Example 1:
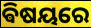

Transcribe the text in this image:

ଵିଷୟରେ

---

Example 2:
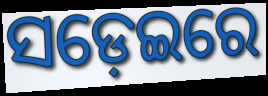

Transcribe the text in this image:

ସଡ଼େଇରେ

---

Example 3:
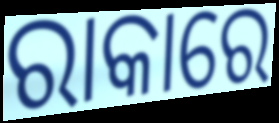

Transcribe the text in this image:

ରାକାରେ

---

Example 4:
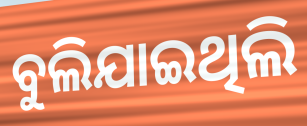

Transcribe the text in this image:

ବୁଲିଯାଇଥିଲି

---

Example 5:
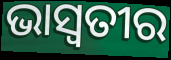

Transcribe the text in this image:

ଭାସ୍ଵତୀର